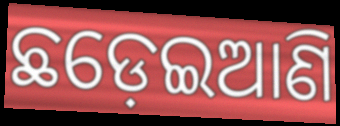
ଛଡ଼େଇଆଣି